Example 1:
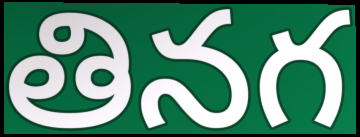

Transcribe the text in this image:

తినగ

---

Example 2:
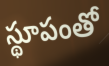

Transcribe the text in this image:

స్థూపంతో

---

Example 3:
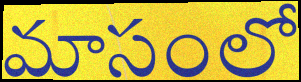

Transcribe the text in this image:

మాసంలో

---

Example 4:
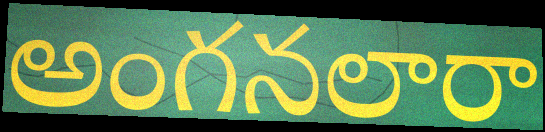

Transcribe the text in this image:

అంగనలారా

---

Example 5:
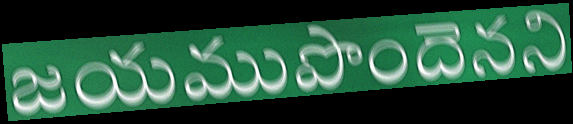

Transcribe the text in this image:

జయముపొందెనని